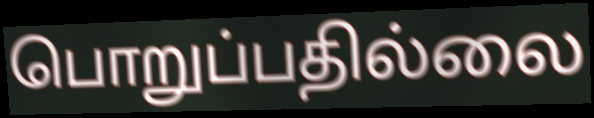
பொறுப்பதில்லை